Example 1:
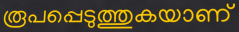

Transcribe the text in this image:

രൂപപ്പെടുത്തുകയാണ്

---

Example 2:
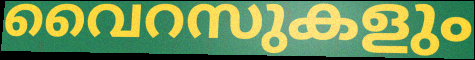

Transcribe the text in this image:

വൈറസുകളും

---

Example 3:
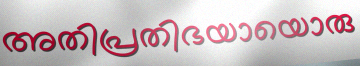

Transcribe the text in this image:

അതിപ്രതിഭയായൊരു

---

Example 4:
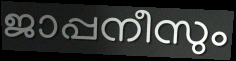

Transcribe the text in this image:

ജാപ്പനീസും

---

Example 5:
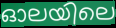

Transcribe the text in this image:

ഓലയിലെ